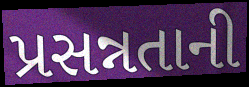
પ્રસન્નતાની